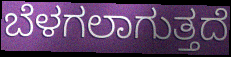
ಬೆಳಗಲಾಗುತ್ತದೆ